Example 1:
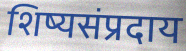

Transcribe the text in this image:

शिष्यसंप्रदाय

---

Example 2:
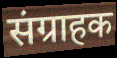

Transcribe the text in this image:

संग्राहक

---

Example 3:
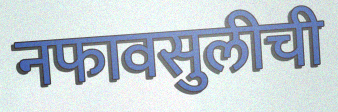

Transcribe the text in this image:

नफावसुलीची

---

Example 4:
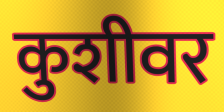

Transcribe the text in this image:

कुशीवर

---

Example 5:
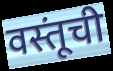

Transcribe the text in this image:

वस्तूंची